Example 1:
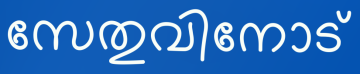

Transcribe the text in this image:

സേതുവിനോട്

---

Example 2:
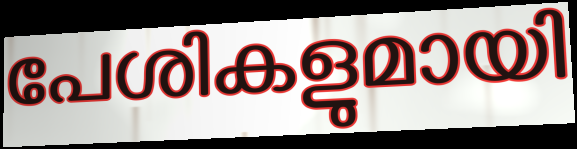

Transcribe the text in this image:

പേശികളുമായി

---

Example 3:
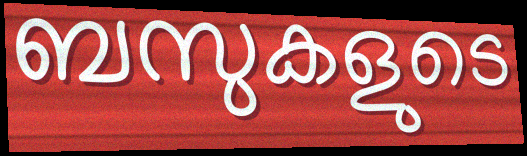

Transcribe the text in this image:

ബസുകളുടെ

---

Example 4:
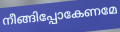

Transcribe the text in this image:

നീങ്ങിപ്പോകേണമേ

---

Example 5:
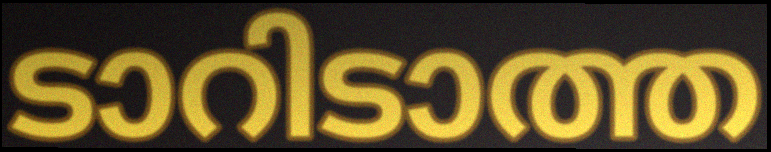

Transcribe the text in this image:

ടാറിടാത്ത